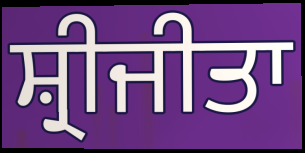
ਸ਼੍ਰੀਜੀਤਾ